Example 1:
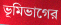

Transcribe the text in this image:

ভূমিভাগের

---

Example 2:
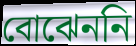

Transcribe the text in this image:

বোঝেননি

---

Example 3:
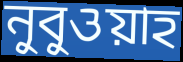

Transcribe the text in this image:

নুবুওয়াহ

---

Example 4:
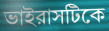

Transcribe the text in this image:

ভাইরাসটিকে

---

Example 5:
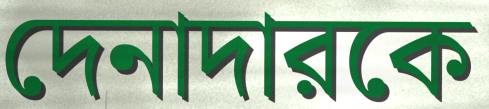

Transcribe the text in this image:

দেনাদারকে